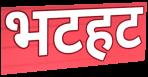
भटहट